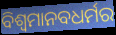
ବିଶ୍ବମାନବଧର୍ମର